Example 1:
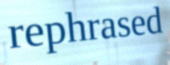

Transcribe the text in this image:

rephrased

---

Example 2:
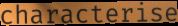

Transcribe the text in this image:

characterise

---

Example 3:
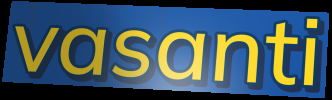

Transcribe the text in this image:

vasanti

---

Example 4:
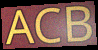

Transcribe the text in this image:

ACB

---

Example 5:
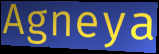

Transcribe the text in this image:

Agneya